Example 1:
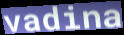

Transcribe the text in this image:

vadina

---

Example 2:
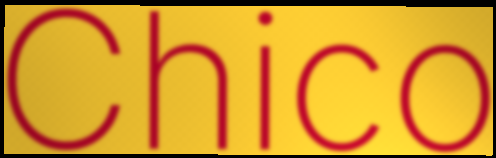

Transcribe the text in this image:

Chico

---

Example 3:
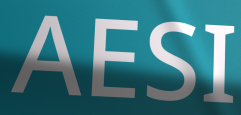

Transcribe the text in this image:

AESI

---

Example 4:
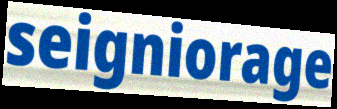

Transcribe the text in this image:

seigniorage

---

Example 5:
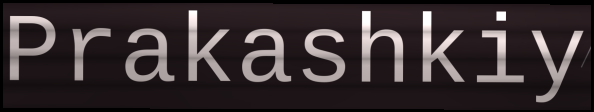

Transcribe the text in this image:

Prakashkiy